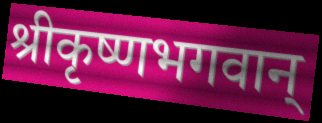
श्रीकृष्णभगवान्